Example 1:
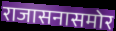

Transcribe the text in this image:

राजासनासमोर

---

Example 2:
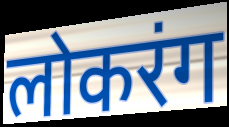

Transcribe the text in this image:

लोकरंग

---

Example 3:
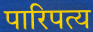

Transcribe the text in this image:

पारिपत्य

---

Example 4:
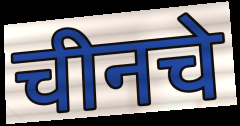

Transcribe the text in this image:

चीनचे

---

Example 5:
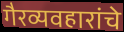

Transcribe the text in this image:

गैरव्यवहारांचे